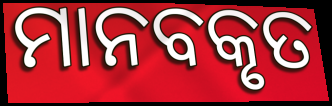
ମାନବକୃତ